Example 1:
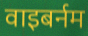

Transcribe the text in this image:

वाइबर्नम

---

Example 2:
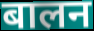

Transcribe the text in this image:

बालन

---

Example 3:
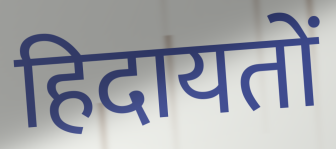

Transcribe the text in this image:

हिदायतों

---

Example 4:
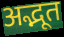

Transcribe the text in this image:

अद्भूत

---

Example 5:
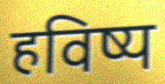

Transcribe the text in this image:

हविष्‍य